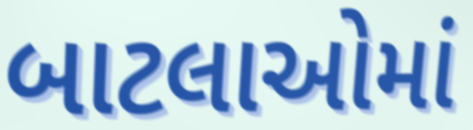
બાટલાઓમાં